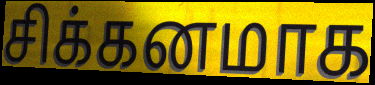
சிக்கனமாக